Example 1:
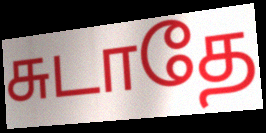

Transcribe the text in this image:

சுடாதே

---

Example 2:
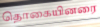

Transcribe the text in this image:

தொகையினரை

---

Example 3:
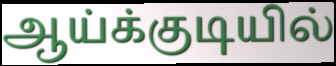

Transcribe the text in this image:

ஆய்க்குடியில்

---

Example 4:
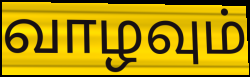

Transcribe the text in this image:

வாழவும்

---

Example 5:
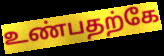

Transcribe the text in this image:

உண்பதற்கே